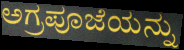
ಅಗ್ರಪೂಜೆಯನ್ನು